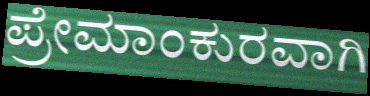
ಪ್ರೇಮಾಂಕುರವಾಗಿ